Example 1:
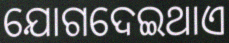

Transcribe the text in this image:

ଯୋଗଦେଇଥାଏ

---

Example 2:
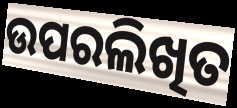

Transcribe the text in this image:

ଉପରଲିଖିତ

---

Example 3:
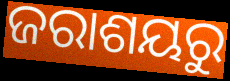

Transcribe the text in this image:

ଜରାଶୟରୁ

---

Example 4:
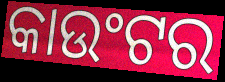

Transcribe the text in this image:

କାଉଂଟର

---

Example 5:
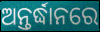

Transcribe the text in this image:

ଅନ୍ତର୍ଦ୍ଧାନରେ